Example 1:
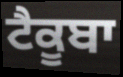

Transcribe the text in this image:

ਟੈਕੂਬਾ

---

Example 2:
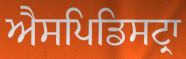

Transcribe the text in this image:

ਐਸਪਿਡਿਸਟ੍ਰਾ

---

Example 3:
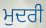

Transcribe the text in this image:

ਮੁਦਰੀ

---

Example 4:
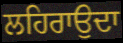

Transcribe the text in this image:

ਲਹਿਰਾਉਦਾ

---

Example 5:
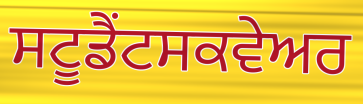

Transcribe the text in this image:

ਸਟੂਡੈਂਟਸਕਵੇਅਰ